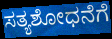
ಸತ್ಯಶೋಧನೆಗೆ